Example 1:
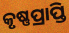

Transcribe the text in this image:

କୃଷ୍ଣପ୍ରାପ୍ତି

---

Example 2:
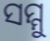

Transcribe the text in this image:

ସମ୍ମୁ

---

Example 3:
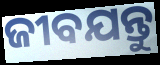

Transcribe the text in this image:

ଜୀବଯନ୍ତୁ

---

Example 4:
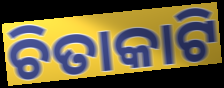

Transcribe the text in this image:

ଚିତାକାଟି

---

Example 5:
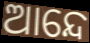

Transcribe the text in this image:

ଆନ୍ଦେ